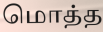
மொத்த